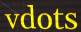
vdots